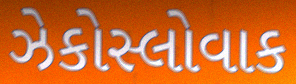
ઝેકોસ્લોવાક